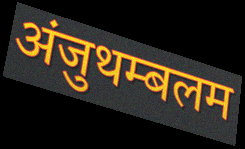
अंजुथम्बलम